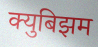
क्युबिझम